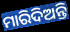
ମାରିଦିଅନ୍ତି